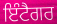
ਇੰਟੈਗਰ